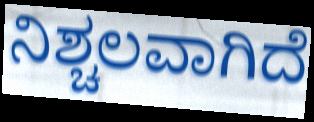
ನಿಶ್ಚಲವಾಗಿದೆ